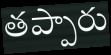
తప్పారు